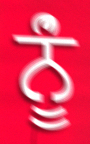
ਨੂਂੰ